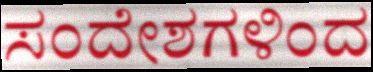
ಸಂದೇಶಗಳಿಂದ